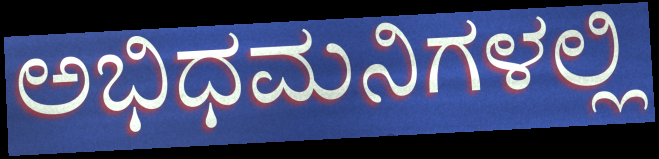
ಅಭಿಧಮನಿಗಳಲ್ಲಿ